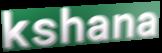
kshana